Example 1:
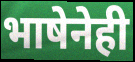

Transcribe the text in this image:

भाषेनेही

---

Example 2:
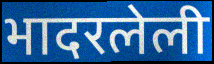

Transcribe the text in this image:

भादरलेली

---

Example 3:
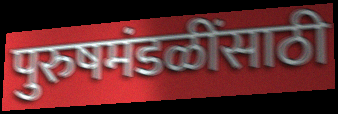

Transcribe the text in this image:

पुरुषमंडळींसाठी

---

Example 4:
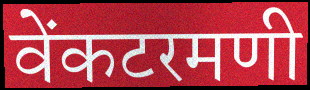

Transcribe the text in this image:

वेंकटरमणी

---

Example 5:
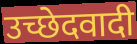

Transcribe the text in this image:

उच्छेदवादी